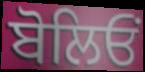
ਬੋਲਿਓਂ